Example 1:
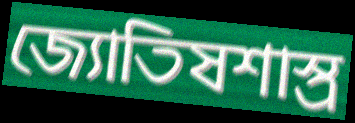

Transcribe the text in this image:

জ্যোতিষশাস্ত্র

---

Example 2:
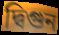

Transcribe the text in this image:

দ্বিগুন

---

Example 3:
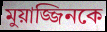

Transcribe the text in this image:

মুয়াজ্জিনকে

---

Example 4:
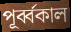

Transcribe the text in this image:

পূর্ব্বকাল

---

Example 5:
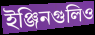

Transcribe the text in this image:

ইঞ্জিনগুলিও